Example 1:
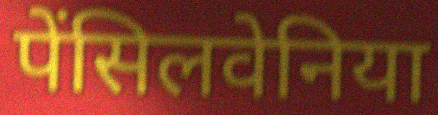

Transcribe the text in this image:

पेंसिलवेनिया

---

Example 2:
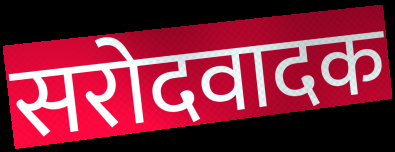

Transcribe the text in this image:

सरोदवादक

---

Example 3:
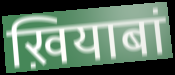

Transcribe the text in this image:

ख़ियाबां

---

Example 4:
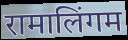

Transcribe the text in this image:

रामालिंगम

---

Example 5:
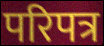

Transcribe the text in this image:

परिपत्र